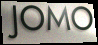
JOMO